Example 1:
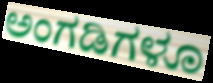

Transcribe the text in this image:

ಅಂಗಡಿಗಳೂ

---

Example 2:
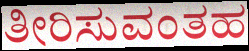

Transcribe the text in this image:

ತೀರಿಸುವಂತಹ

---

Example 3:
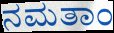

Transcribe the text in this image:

ನಮತಾಂ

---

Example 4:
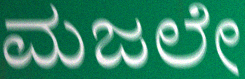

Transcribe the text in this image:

ಮಜಲೇ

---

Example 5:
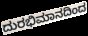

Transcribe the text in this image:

ದುರಭಿಮಾನದಿಂದ